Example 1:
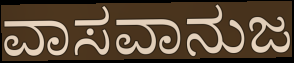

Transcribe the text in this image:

ವಾಸವಾನುಜ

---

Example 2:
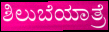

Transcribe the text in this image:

ಶಿಲುಬೆಯಾತ್ರೆ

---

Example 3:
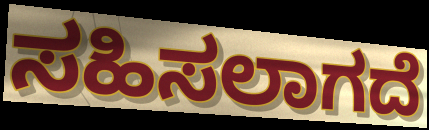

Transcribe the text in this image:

ಸಹಿಸಲಾಗದೆ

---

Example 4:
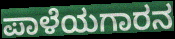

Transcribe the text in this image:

ಪಾಳೆಯಗಾರನ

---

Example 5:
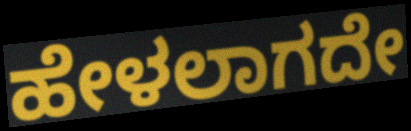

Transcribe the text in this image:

ಹೇಳಲಾಗದೇ